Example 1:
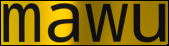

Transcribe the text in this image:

mawu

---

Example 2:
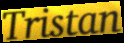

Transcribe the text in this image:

Tristan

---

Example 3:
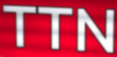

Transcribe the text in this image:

TTN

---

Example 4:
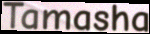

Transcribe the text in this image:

Tamasha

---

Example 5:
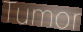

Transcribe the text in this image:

Tumor